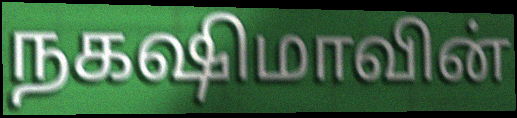
நகஷிமாவின்